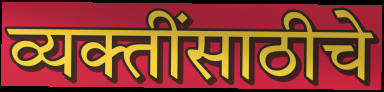
व्यक्तींसाठीचे